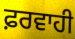
ਫ਼ਰਵਾਹੀ